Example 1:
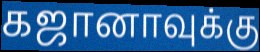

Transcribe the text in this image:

கஜானாவுக்கு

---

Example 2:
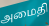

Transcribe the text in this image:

அமைதி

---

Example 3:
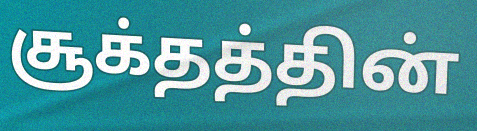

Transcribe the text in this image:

சூக்தத்தின்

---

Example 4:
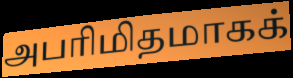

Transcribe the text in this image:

அபரிமிதமாகக்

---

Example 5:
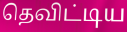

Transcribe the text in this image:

தெவிட்டிய